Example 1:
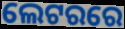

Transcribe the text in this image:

ଲେଟରରେ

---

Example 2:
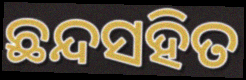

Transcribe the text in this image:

ଛନ୍ଦସହିତ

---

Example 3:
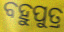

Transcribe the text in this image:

ବହୁପୁତ୍ର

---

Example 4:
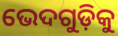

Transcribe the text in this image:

ଭେଦଗୁଡ଼ିକୁ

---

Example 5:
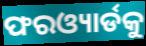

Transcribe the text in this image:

ଫରଓ୍ୟାର୍ଡକୁ